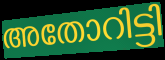
അതോറിട്ടി